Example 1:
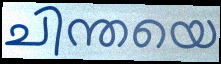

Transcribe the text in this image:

ചിന്തയെ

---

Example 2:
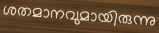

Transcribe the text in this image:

ശതമാനവുമായിരുന്നു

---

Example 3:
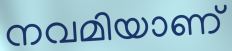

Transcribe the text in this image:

നവമിയാണ്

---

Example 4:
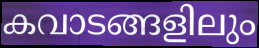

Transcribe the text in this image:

കവാടങ്ങളിലും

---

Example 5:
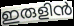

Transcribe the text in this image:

ഇരുളിൻ